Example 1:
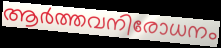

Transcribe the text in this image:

ആർത്തവനിരോധനം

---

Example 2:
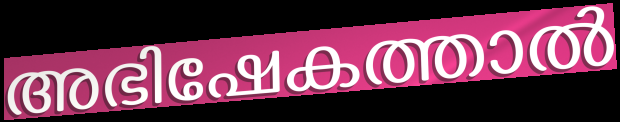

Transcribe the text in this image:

അഭിഷേകത്താൽ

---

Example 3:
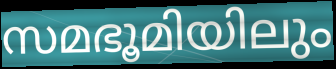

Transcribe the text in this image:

സമഭൂമിയിലും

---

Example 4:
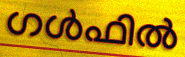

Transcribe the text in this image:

ഗൾഫിൽ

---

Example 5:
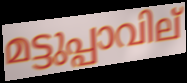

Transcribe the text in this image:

മട്ടുപ്പാവില്